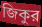
জিকুর